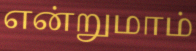
என்றுமாம்